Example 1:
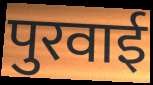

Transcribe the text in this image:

पुरवाई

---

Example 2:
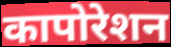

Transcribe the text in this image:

कापोरेशन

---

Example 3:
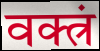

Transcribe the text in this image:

वक्त्रं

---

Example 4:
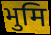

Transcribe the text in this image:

भुमि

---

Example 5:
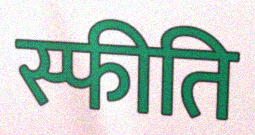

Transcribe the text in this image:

स्‍फीति